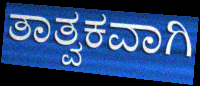
ತಾತ್ವಕವಾಗಿ